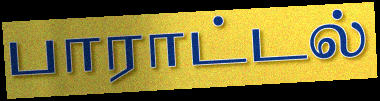
பாராட்டல்